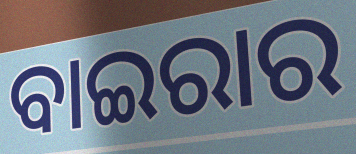
ବାଇରାର